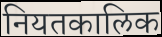
नियतकालिक